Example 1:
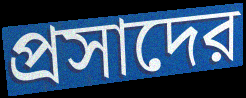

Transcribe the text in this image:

প্রসাদের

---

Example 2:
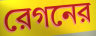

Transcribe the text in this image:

রেগনের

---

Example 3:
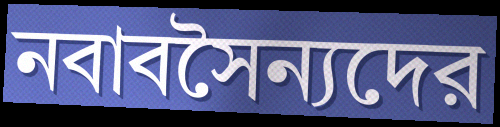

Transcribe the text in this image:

নবাবসৈন্যদের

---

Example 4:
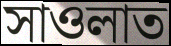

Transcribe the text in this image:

সাওলাত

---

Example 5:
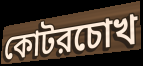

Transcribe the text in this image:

কোটরচোখ